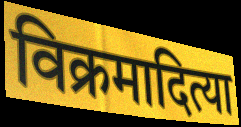
विक्रमादित्या